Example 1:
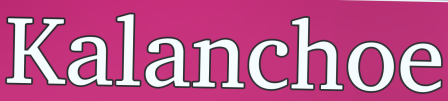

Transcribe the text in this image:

Kalanchoe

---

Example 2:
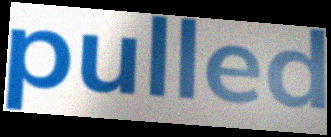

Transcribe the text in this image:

pulled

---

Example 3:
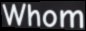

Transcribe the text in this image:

Whom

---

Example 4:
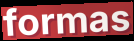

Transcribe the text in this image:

formas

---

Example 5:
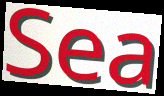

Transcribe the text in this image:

Sea